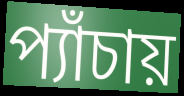
প্যাঁচায়